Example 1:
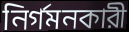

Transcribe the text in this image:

নির্গমনকারী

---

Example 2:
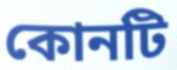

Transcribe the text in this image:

কোনটি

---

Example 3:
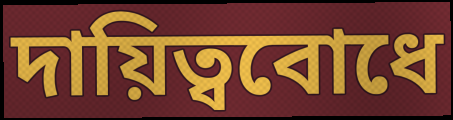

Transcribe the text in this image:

দায়িত্ববোধে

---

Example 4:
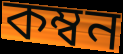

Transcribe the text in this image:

কম্বন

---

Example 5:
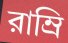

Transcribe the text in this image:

রাম্রি